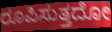
ರೂಪಿಸುತ್ತದೋ